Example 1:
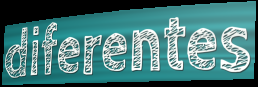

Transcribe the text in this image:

diferentes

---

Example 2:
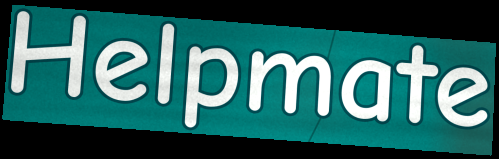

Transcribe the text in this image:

Helpmate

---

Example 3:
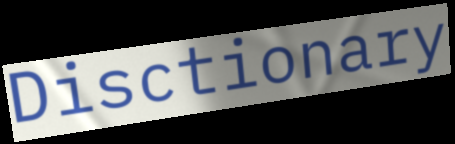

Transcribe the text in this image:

Disctionary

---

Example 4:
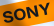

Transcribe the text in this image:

SONY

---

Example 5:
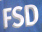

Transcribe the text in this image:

FSD